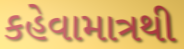
કહેવામાત્રથી